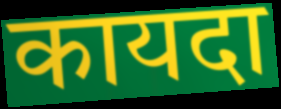
कायदा